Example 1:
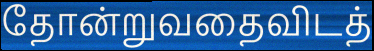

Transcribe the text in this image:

தோன்றுவதைவிடத்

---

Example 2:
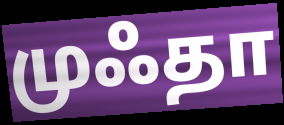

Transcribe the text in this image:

முஃதா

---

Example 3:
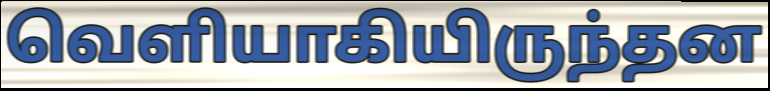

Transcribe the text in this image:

வெளியாகியிருந்தன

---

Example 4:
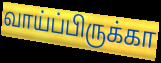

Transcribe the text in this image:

வாய்ப்பிருக்கா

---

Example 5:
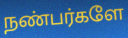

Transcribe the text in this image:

நண்பர்களே